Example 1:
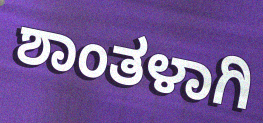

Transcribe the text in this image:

ಶಾಂತಳಾಗಿ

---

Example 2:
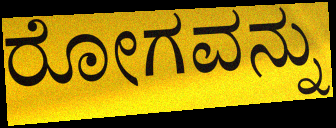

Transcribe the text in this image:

ರೋಗವನ್ನು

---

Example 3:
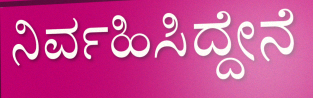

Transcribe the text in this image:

ನಿರ್ವಹಿಸಿದ್ದೇನೆ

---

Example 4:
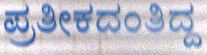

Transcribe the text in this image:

ಪ್ರತೀಕದಂತಿದ್ದ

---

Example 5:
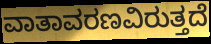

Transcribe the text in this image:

ವಾತಾವರಣವಿರುತ್ತದೆ